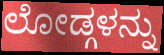
ಲೋಡ್ಗಳನ್ನು